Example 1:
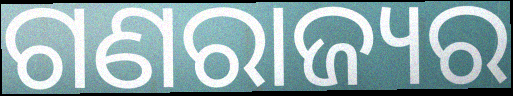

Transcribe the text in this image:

ଗଣରାଜ୍ୟର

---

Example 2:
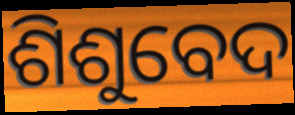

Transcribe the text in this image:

ଶିଶୁବେଦ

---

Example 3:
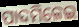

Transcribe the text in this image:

ପାଦମିଳେଇ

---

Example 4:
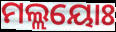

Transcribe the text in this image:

ମଲ୍ଲୟୋଃ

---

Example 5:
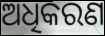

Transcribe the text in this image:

ଅଧିକରଣ